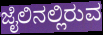
ಜೈಲಿನಲ್ಲಿರುವ